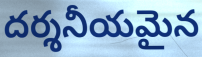
దర్శనీయమైన